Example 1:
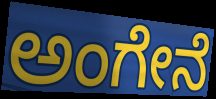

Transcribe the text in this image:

ಅಂಗೇನೆ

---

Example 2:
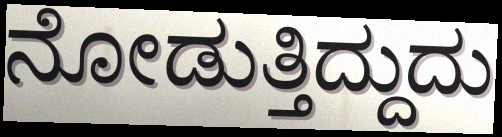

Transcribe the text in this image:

ನೋಡುತ್ತಿದ್ದುದು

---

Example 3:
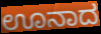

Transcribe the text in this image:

ಊನಾದ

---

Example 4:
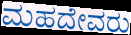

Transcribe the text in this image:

ಮಹದೇವರು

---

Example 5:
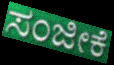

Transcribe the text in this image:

ಸಂಜೀಕೆ